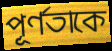
পূর্ণতাকে